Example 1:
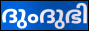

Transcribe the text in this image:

ദുംദുഭി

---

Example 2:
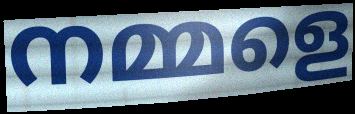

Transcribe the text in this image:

നമ്മളെ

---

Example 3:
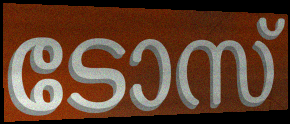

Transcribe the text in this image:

ടോസ്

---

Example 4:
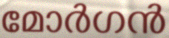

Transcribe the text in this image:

മോർഗൻ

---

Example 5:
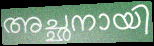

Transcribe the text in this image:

അച്ഛനായി